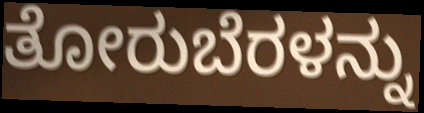
ತೋರುಬೆರಳನ್ನು